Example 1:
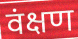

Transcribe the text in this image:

वंक्षण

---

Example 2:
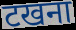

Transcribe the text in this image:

टखना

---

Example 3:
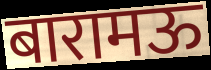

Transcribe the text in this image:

बारामऊ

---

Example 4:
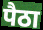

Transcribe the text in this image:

पैठा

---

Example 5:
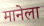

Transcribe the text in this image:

मानेला